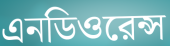
এনডিওরেন্স